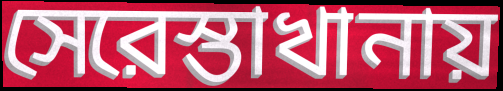
সেরেস্তাখানায়